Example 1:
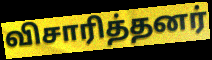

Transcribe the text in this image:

விசாரித்தனர்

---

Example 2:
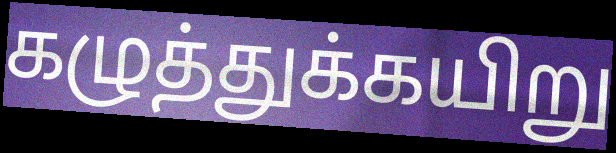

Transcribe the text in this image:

கழுத்துக்கயிறு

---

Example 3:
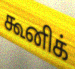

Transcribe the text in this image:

கூனிக்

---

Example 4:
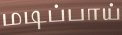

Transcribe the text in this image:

மடிப்பாய்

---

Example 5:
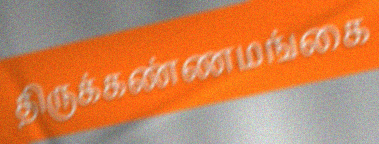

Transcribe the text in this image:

திருக்கண்ணமங்கை